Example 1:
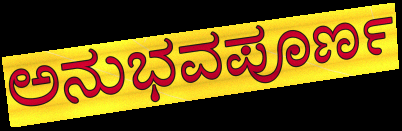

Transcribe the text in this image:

ಅನುಭವಪೂರ್ಣ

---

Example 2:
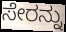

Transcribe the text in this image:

ಸೇರನ್ನು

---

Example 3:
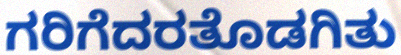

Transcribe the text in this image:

ಗರಿಗೆದರತೊಡಗಿತು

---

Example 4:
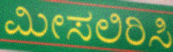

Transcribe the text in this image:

ಮೀಸಲಿರಿಸಿ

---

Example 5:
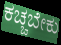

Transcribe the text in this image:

ಕಚ್ಚಬೇಕು